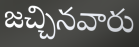
జచ్చినవారు